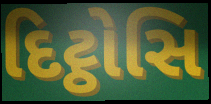
દિટ્ઠોસિ